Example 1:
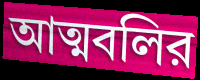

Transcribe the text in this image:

আত্মবলির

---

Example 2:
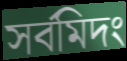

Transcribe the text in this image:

সর্বমিদং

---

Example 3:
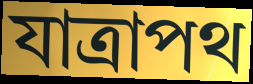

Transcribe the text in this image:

যাত্রাপথ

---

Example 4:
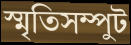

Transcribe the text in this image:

স্মৃতিসম্পুট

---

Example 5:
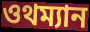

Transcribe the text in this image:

ওথম্যান